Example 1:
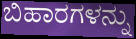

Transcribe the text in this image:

ಬಿಹಾರಗಳನ್ನು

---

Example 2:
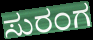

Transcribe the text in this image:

ಸುರಂಗ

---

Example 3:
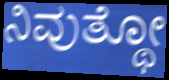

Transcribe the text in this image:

ನಿವುತ್ಥೋ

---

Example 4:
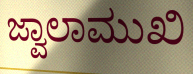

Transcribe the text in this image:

ಜ್ವಾಲಾಮುಖಿ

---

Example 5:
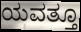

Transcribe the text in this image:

ಯವತ್ತೂ